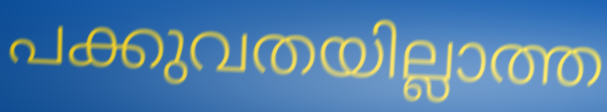
പക്കുവതയില്ലാത്ത